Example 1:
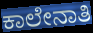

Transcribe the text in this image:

ಕಾಲೇನಾತಿ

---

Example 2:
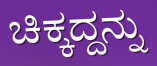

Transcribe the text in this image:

ಚಿಕ್ಕದ್ದನ್ನು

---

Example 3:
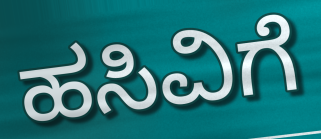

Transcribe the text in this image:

ಹಸಿವಿಗೆ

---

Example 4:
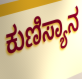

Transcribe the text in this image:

ಕುಣಿಸ್ಯಾನ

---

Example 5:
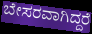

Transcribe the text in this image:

ಬೇಸರವಾಗಿದ್ದರೆ